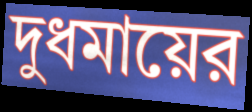
দুধমায়ের